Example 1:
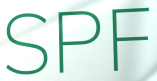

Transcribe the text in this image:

SPF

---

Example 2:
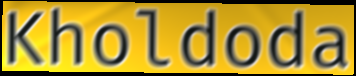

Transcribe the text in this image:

Kholdoda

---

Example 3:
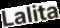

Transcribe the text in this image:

Lalita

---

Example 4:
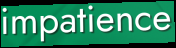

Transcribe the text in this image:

impatience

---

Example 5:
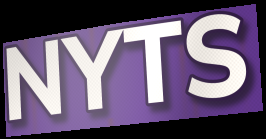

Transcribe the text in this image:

NYTS